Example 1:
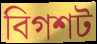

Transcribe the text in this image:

বিগশট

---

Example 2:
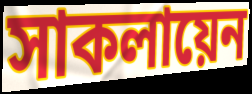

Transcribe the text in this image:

সাকলায়েন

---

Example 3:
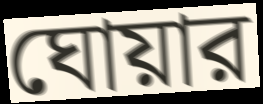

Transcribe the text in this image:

ঘোয়ার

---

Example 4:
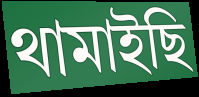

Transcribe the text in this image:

থামাইছি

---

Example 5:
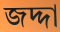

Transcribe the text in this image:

জদ্দা